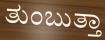
ತುಂಬುತ್ತಾ